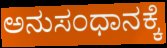
ಅನುಸಂಧಾನಕ್ಕೆ